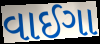
વાઈગા